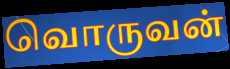
வொருவன்